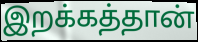
இறக்கத்தான்